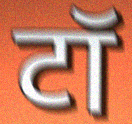
टॉ